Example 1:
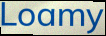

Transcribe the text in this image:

Loamy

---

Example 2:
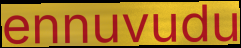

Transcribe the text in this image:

ennuvudu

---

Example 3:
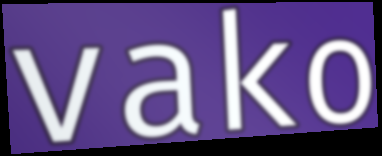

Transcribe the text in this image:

vako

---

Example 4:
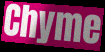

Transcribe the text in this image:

Chyme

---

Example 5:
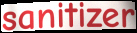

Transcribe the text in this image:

sanitizer